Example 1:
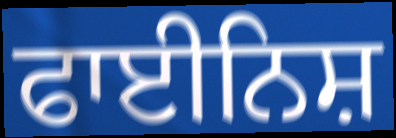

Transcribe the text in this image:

ਫਾਈਨਿਸ਼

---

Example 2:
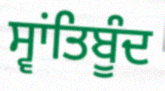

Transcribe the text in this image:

ਸ੍ਵਾਂਤਿਬੂੰਦ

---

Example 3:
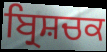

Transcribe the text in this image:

ਬ੍ਰਿਸ਼ਚਕ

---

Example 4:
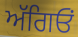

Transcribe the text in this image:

ਅੱਗਿਓਂ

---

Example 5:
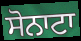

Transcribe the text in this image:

ਸੋਨਾਟਾ